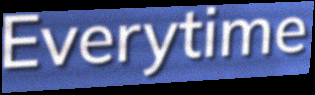
Everytime